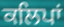
ਕਲਿਪਾਂ